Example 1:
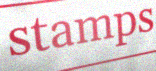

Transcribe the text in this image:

stamps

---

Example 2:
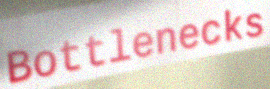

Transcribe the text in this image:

Bottlenecks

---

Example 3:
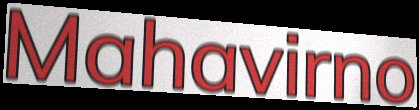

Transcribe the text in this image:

Mahavirno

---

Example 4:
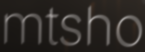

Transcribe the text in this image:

mtsho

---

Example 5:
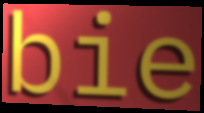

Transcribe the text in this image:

bie